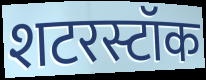
शटरस्‍टॉक